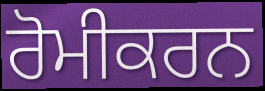
ਰੋਮੀਕਰਨ